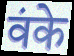
वंके